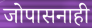
जोपासनाही